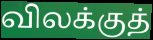
விலக்குத்